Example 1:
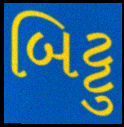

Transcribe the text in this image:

બિટ્ટુ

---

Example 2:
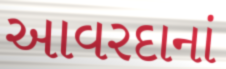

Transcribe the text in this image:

આવરદાનાં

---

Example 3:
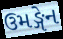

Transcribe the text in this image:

ઉમઙ્ગેન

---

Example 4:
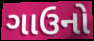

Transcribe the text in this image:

ગાઉનો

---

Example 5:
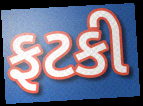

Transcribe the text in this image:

ફટકી